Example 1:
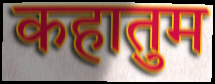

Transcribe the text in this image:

कहातुम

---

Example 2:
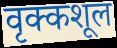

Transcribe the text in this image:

वृक्कशूल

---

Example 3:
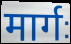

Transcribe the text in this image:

मार्गः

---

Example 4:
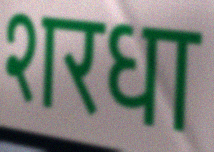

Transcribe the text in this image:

शरधा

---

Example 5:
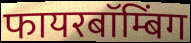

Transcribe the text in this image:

फायरबॉम्बिंग